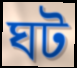
ঘট